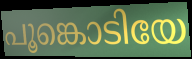
പൂങ്കൊടിയേ